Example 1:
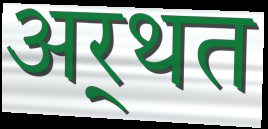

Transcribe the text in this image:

अर्थत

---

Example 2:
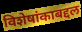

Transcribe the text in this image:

विशेषांकाबद्दल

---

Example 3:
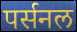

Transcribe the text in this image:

पर्सनल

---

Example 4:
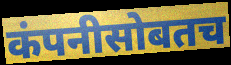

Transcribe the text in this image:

कंपनीसोबतच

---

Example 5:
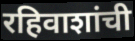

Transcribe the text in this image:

रहिवाशांची